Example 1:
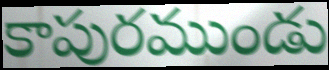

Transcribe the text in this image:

కాపురముండు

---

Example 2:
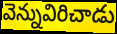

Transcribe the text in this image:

వెన్నువిరిచాడు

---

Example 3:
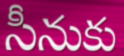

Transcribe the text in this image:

సీనుకు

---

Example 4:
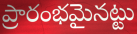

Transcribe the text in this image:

ప్రారంభమైనట్టు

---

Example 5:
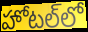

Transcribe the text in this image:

హోటల్‌లో